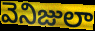
వెనిజులా